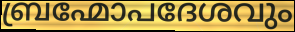
ബ്രഹ്മോപദേശവും